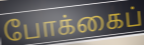
போக்கைப்